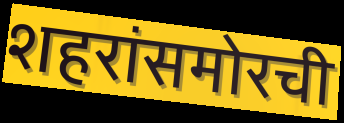
शहरांसमोरची